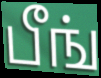
பீங்